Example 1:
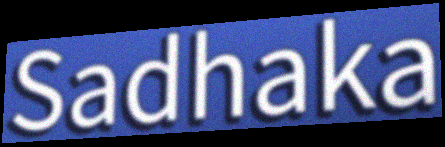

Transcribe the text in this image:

Sadhaka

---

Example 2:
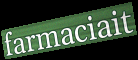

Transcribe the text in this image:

farmaciait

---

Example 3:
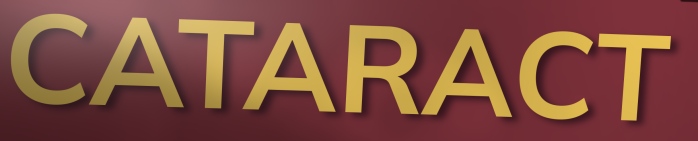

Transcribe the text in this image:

CATARACT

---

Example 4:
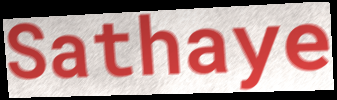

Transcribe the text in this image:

Sathaye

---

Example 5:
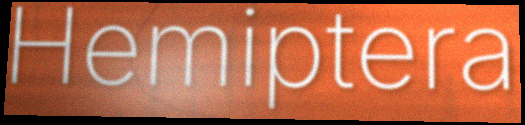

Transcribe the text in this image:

Hemiptera